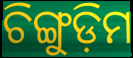
ଚିଙ୍ଗୁଡ଼ିମ